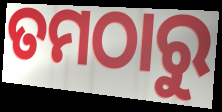
ତମଠାରୁ